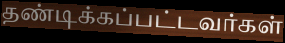
தண்டிக்கப்பட்டவர்கள்